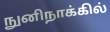
நுனிநாக்கில்